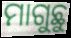
ମାଗୁଛୁ